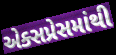
એક્સપ્રેસમાંથી